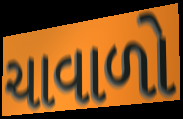
ચાવાળો